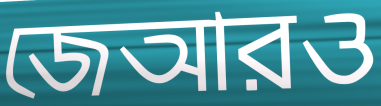
জেআরও